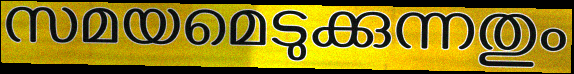
സമയമെടുക്കുന്നതും